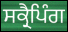
ਸਕ੍ਰੈਪਿੰਗ